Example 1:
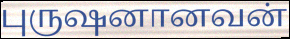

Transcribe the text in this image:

புருஷனானவன்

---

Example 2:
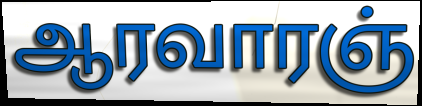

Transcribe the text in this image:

ஆரவாரஞ்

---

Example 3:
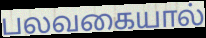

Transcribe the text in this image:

பலவகையால்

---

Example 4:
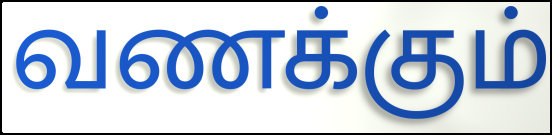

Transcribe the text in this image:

வணக்கும்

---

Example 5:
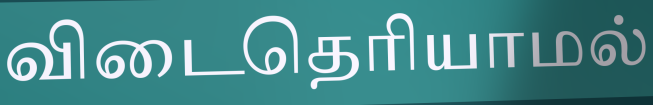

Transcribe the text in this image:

விடைதெரியாமல்